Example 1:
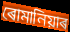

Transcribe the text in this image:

ৰোমানিয়াৰ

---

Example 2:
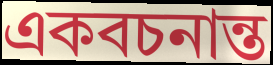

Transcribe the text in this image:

একবচনান্ত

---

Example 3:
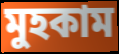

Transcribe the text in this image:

মুহকাম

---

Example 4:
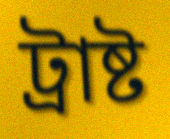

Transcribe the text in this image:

ট্ৰাষ্ট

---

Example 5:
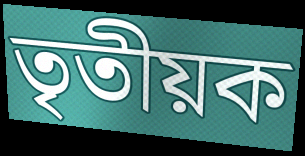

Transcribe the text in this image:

তৃতীয়ক